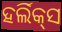
ହର୍ଲିକ୍‌ସ